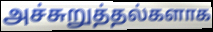
அச்சுறுத்தல்களாக